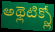
అథ్లెటిక్స్లో